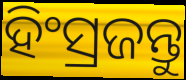
ହିଂସ୍ରଜନ୍ତୁ